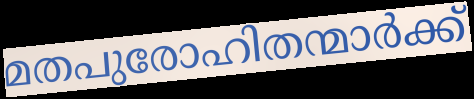
മതപുരോഹിതന്മാർക്ക്